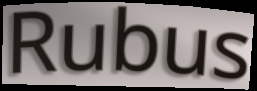
Rubus